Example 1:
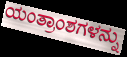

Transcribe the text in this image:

ಯಂತ್ರಾಂಶಗಳನ್ನು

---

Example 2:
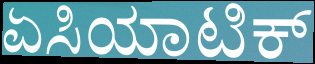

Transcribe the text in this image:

ಏಸಿಯಾಟಿಕ್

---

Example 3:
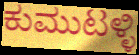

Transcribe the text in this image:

ಕುಮುಟಳ್ಳಿ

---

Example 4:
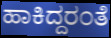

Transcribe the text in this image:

ಹಾಕಿದ್ದರಂತೆ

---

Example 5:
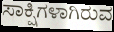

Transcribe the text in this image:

ಸಾಕ್ಷಿಗಳಾಗಿರುವ